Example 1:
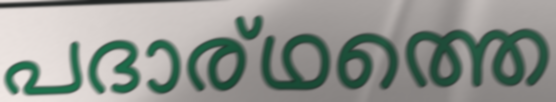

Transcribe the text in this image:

പദാര്ഥത്തെ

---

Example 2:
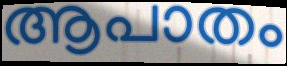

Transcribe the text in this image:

ആപാതം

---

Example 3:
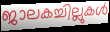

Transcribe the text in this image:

ജാലകച്ചില്ലുകൾ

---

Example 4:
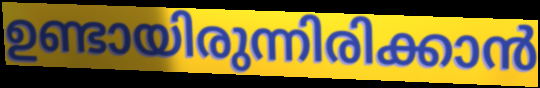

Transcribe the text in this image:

ഉണ്ടായിരുന്നിരിക്കാൻ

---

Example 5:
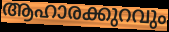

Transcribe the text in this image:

ആഹാരക്കുറവും